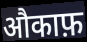
औकाफ़